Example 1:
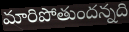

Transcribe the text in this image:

మారిపోతుందన్నది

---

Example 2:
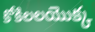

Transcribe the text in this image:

కోకిలలయొక్క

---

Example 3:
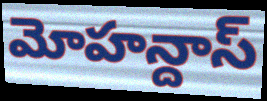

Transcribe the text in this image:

మోహన్దాస్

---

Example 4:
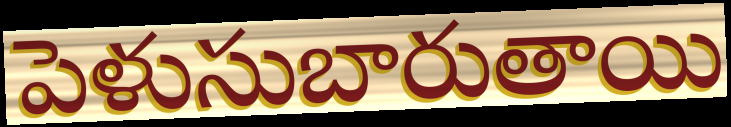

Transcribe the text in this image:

పెళుసుబారుతాయి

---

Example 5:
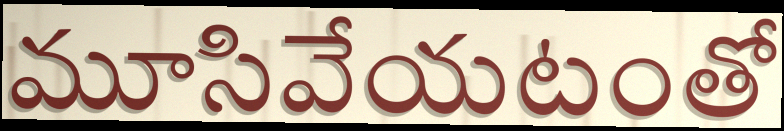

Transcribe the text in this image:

మూసివేయటంతో